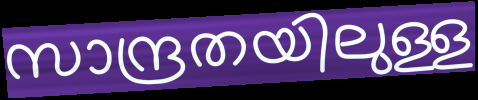
സാന്ദ്രതയിലുള്ള